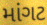
માંગટ